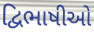
દ્વિભાષીઓ